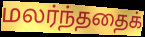
மலர்ந்ததைக்